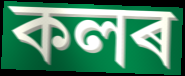
কলৰ